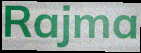
Rajma